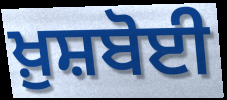
ਖ਼ੁਸ਼ਬੋਈ